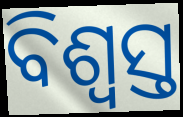
ବିଶ୍ଵସ୍ତ